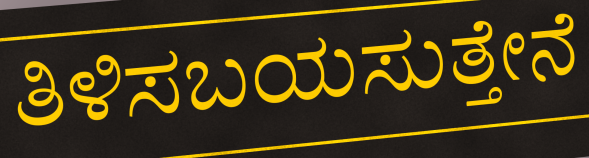
ತಿಳಿಸಬಯಸುತ್ತೇನೆ